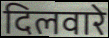
दिलवारे